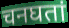
चनघतां